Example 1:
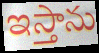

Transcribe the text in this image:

ఇస్తాను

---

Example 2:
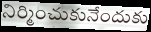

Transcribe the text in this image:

నిర్మించుకునేందుకు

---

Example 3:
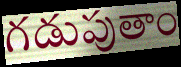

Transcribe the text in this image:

గడుపుతాం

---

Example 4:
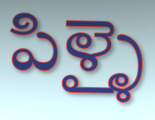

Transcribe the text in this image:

పిళ్ళై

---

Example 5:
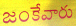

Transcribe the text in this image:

జంకేవారు